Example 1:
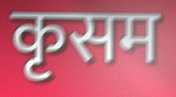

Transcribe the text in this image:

कृसम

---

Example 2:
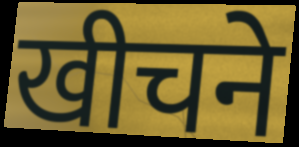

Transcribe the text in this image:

खीचने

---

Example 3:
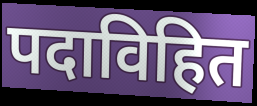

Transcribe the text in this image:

पदाविहित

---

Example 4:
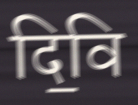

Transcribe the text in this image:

दि॒वि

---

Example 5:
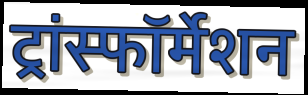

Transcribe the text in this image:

ट्रांस्फॉर्मेशन